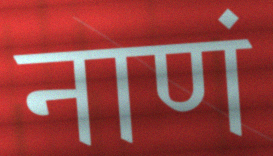
नाणं